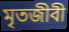
মৃতজীবী